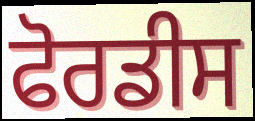
ਫੋਰਡੀਸ